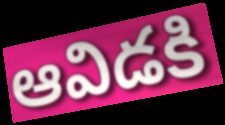
ఆవిడకి